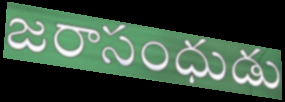
జరాసంధుడు